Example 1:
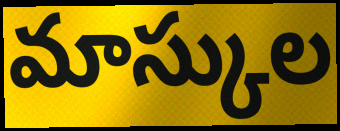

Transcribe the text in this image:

మాస్కుల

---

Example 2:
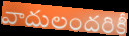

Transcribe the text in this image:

వాదులందరికీ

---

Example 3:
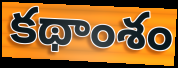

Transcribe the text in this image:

కథాంశం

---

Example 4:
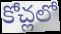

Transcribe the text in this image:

కోచ్లలో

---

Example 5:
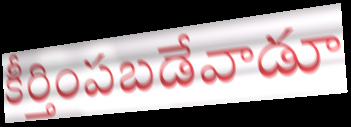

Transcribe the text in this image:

కీర్తింపబడేవాడూ